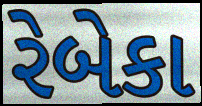
રેબેકા